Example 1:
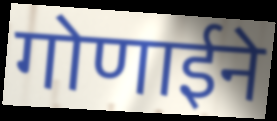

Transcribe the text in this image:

गोणाईने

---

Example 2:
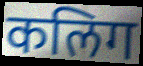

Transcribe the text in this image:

कलिग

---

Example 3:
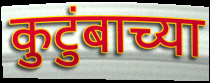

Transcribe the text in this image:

कुटुंबाच्या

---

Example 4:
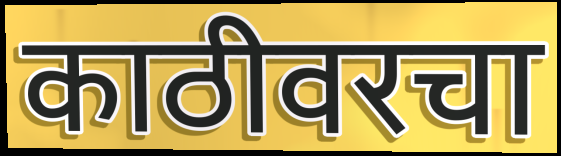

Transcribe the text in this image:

काठीवरचा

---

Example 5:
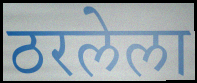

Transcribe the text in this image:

ठरलेला